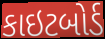
કાઇટબોર્ડ